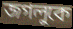
জগলুকে